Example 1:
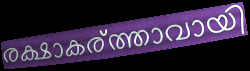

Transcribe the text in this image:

രക്ഷാകര്ത്താവായി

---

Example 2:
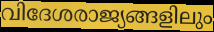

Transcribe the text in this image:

വിദേശരാജ്യങ്ങളിലും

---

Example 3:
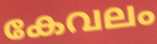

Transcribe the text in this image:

കേവലം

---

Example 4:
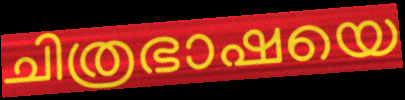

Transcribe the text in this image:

ചിത്രഭാഷയെ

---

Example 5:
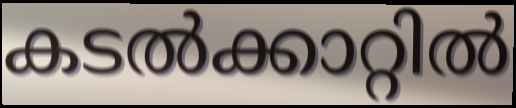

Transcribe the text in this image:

കടൽക്കാറ്റിൽ